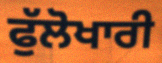
ਫੁੱਲੋਖਾਰੀ